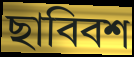
ছাবিবশ